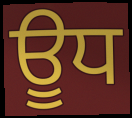
ਊਧ